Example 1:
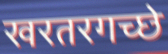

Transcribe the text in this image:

खरतरगच्छे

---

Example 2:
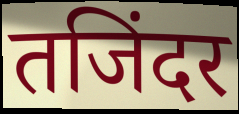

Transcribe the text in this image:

तजिंदर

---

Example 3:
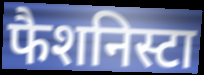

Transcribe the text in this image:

फैशनिस्टा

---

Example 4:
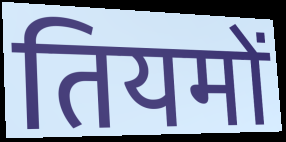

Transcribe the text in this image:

तियमों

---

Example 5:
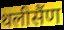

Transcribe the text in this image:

थलीसैंण